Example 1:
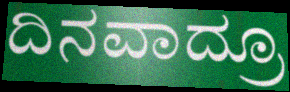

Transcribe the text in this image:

ದಿನವಾದ್ರೂ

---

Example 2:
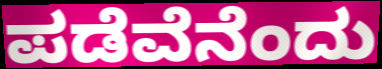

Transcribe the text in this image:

ಪಡೆವೆನೆಂದು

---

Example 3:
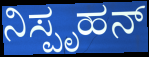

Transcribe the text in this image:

ನಿಸ್ಪೃಹನ್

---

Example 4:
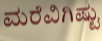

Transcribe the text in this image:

ಮರೆವಿಗಿಷ್ಟು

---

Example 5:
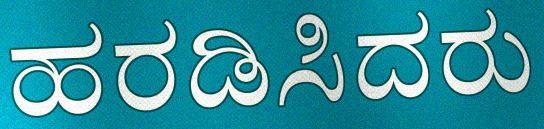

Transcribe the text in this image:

ಹರಡಿಸಿದರು